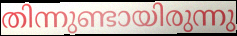
തിന്നുണ്ടായിരുന്നു